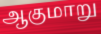
ஆகுமாறு